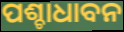
ପଶ୍ଚାଧାବନ